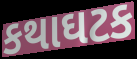
કથાઘટક